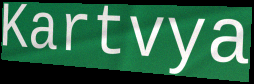
Kartvya